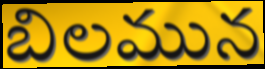
బిలమున